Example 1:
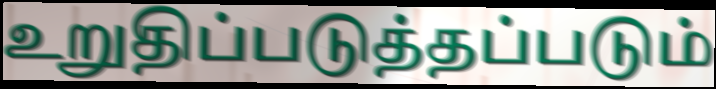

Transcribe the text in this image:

உறுதிப்படுத்தப்படும்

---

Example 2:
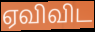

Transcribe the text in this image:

ஏவிவிட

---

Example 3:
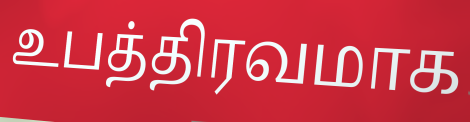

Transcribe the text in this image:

உபத்திரவமாக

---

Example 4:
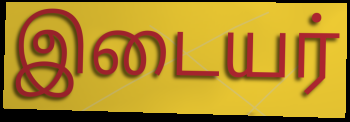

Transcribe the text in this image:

இடையர்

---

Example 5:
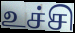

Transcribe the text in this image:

உச்சி